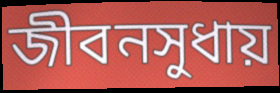
জীবনসুধায়